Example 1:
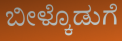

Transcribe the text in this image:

ಬೀಳ್ಕೊಡುಗೆ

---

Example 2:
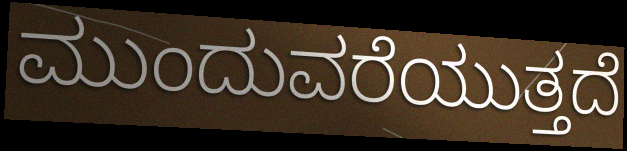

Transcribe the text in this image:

ಮುಂದುವರೆಯುತ್ತದೆ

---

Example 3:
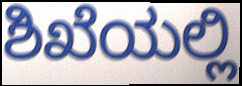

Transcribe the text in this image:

ಶಿಖೆಯಲ್ಲಿ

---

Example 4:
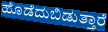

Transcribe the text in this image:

ಹೊಡೆದುಬಿಡುತ್ತಾರೆ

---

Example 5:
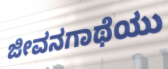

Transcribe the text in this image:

ಜೀವನಗಾಥೆಯು